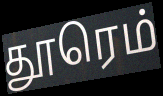
தூரெம்